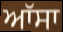
ਆੱਸਾ